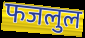
फजलुल